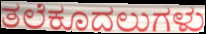
ತಲೆಕೂದಲುಗಳು